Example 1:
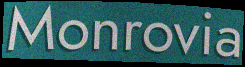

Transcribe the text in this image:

Monrovia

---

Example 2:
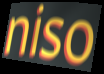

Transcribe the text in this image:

niso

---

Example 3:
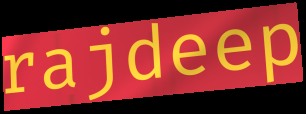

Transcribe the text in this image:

rajdeep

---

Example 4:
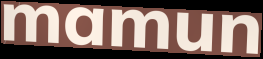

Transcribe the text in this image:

mamun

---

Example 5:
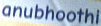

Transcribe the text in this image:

anubhoothi